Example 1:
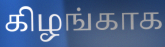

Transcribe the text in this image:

கிழங்காக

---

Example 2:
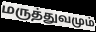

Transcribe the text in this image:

மருத்துவமும்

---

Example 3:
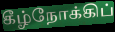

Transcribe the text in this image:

கீழ்நோக்கிப்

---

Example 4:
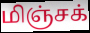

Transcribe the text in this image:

மிஞ்சக்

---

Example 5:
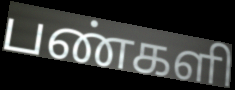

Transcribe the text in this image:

பண்களி